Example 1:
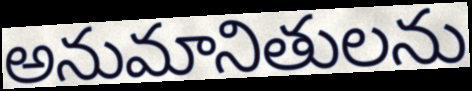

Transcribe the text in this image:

అనుమానితులను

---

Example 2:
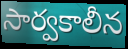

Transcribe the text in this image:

సార్వకాలీన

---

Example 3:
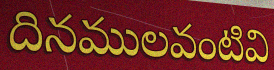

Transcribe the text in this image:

దినములవంటివి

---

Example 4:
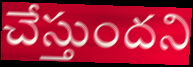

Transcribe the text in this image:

చేస్తుందని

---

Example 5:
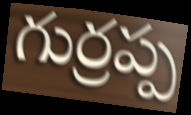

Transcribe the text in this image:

గుర్రప్ప